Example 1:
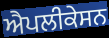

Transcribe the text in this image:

ਐਪਲੀਕੇਸਨ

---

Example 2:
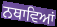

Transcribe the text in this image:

ਨਥਾਵਿਆਂ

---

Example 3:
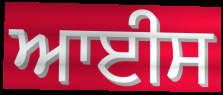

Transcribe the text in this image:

ਆਈਸ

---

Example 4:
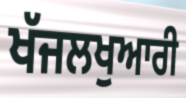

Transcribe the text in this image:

ਖੱਜਲਖੁਆਰੀ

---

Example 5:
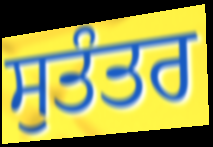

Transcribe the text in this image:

ਸੁਤੰਤਰ